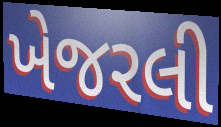
ખેજરલી